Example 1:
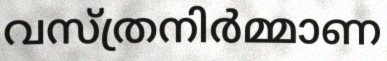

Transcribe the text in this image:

വസ്ത്രനിർമ്മാണ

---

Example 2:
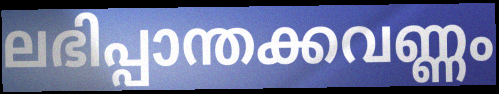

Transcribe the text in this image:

ലഭിപ്പാന്തക്കവണ്ണം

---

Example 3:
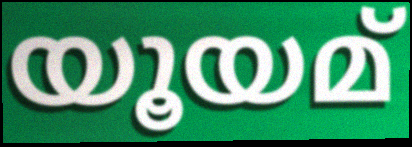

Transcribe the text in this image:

യൂയമ്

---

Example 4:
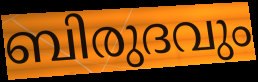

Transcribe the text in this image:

ബിരുദവും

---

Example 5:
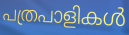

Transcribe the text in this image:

പത്രപാളികൾ